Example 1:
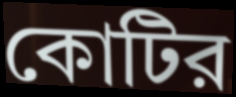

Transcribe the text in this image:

কোটির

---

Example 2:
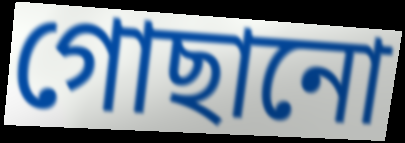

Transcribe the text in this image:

গোছানো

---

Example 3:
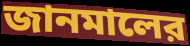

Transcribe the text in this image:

জানমালের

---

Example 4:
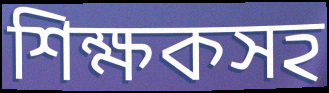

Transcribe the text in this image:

শিক্ষকসহ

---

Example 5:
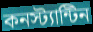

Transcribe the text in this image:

কনস্ট্যান্টিন